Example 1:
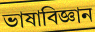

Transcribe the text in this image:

ভাষাবিজ্ঞান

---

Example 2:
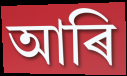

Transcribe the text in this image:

আৰি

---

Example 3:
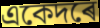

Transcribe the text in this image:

একেদৰে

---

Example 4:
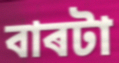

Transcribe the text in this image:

বাৰটা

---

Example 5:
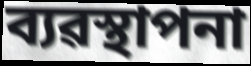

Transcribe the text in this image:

ব্যৱস্থাপনা